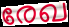
രേഖ